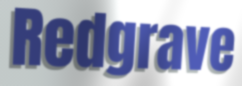
Redgrave